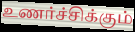
உணர்ச்சிக்கும்